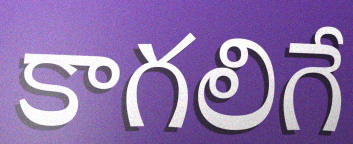
కాగలిగే